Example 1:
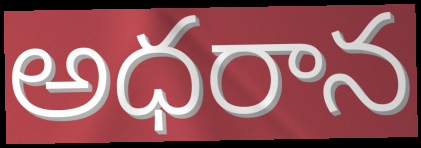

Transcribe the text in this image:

అధరాన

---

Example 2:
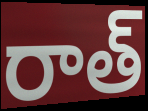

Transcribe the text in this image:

రాత్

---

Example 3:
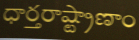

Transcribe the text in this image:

ధార్తరాష్ట్రాణాం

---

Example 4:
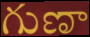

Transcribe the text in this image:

గుణా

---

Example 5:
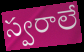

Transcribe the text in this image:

స్వరాలే